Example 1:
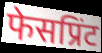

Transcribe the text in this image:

फेसप्रिंट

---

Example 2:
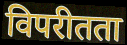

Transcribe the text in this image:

विपरीतता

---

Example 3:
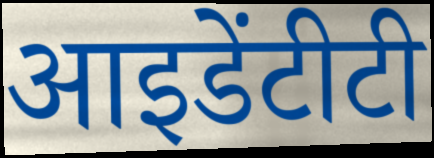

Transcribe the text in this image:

आइडेंटीटी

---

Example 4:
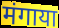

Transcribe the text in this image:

मंगाया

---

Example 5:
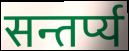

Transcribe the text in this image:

सन्तर्प्य